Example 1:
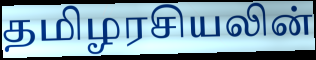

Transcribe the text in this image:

தமிழரசியலின்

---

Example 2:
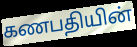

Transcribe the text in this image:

கணபதியின்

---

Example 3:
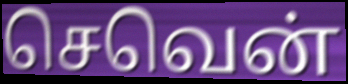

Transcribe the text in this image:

செவென்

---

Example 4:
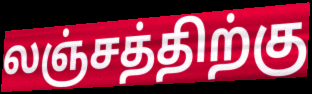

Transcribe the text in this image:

லஞ்சத்திற்கு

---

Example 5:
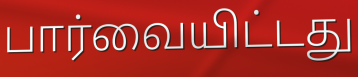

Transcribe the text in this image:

பார்வையிட்டது